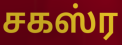
சகஸ்ர